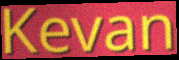
Kevan